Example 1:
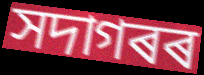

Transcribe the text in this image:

সদাগৰৰ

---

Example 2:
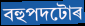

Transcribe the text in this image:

বহুপদটোৰ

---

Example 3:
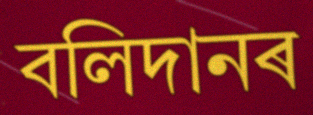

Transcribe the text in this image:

বলিদানৰ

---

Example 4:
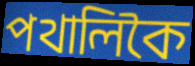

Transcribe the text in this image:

পথালিকৈ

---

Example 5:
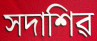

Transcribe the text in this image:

সদাশিৱ